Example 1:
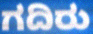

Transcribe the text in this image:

ಗದಿರು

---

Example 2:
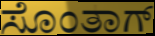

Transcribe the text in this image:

ಸೊಂತಾಗ್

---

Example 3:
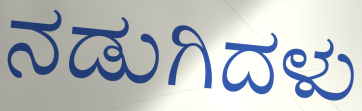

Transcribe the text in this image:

ನಡುಗಿದಳು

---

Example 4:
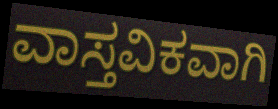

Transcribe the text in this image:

ವಾಸ್ತವಿಕವಾಗಿ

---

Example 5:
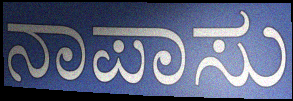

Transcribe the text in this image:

ನಾಪಾಸು